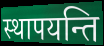
स्थापयन्ति